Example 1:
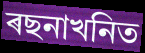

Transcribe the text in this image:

ৰছনাখনিত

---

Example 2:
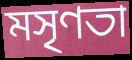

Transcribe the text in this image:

মসৃণতা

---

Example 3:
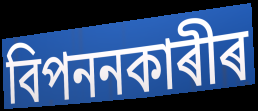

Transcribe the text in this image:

বিপননকাৰীৰ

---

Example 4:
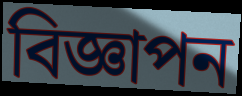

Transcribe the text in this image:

বিজ্ঞাপন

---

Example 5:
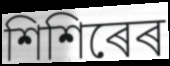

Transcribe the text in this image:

শিশিৰেৰ